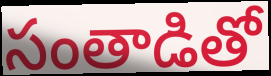
సంతాడితో